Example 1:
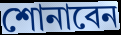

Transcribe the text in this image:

শোনাবেন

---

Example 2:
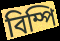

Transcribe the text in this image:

বিম্পি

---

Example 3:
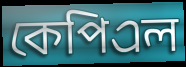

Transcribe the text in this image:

কেপিএল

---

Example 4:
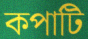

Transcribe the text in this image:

কপাটি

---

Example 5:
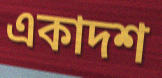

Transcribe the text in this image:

একাদশ